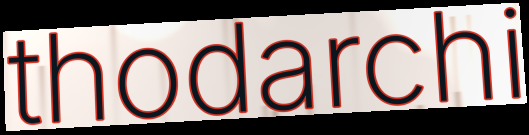
thodarchi